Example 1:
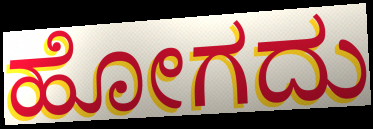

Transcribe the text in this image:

ಹೋಗದು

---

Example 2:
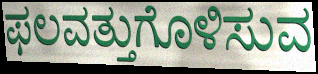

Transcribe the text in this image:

ಫಲವತ್ತುಗೊಳಿಸುವ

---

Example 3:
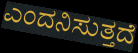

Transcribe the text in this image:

ಎಂದನಿಸುತ್ತದೆ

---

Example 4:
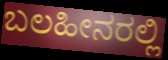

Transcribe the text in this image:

ಬಲಹೀನರಲ್ಲಿ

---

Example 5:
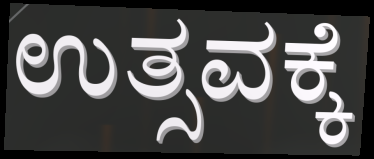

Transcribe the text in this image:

ಉತ್ಸವಕ್ಕೆ